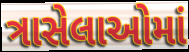
ત્રાસેલાઓમાં